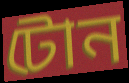
টোন